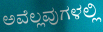
ಅವೆಲ್ಲವುಗಳಲ್ಲಿ